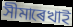
সীমাৰেখাই